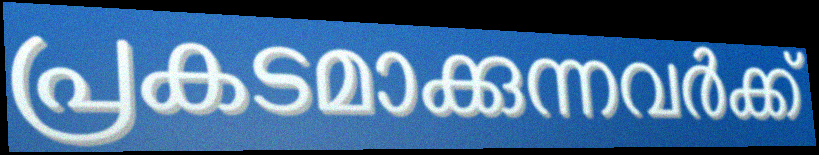
പ്രകടമാക്കുന്നവർക്ക്